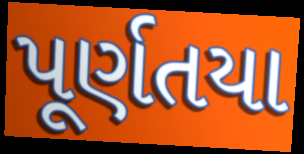
પૂર્ણતયા